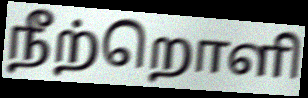
நீற்றொளி